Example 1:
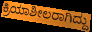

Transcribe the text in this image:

ಕ್ರಿಯಾಶೀಲರಾಗಿದ್ದು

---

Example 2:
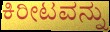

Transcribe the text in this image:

ಕಿರೀಟವನ್ನು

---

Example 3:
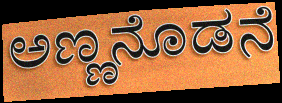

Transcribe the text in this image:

ಅಣ್ಣನೊಡನೆ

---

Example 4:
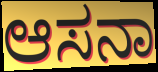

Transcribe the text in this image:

ಆಸನಾ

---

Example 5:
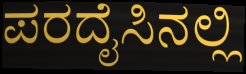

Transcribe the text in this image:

ಪರದೈಸಿನಲ್ಲಿ